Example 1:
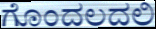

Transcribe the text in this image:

ಗೊಂದಲದಲಿ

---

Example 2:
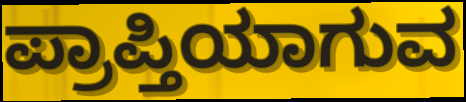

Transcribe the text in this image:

ಪ್ರಾಪ್ತಿಯಾಗುವ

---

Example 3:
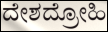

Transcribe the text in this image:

ದೇಶದ್ರೋಹಿ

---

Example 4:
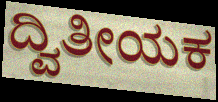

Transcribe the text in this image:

ದ್ವಿತೀಯಕ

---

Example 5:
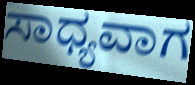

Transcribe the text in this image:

ಸಾಧ್ಯವಾಗ